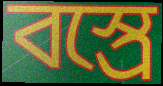
বস্ত্রে